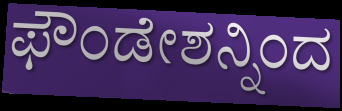
ಫೌಂಡೇಶನ್ನಿಂದ